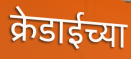
क्रेडाईच्या